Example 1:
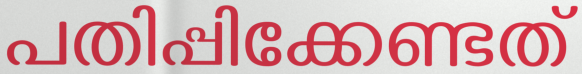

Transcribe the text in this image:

പതിപ്പിക്കേണ്ടത്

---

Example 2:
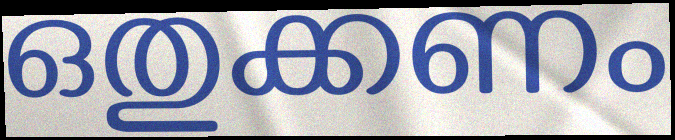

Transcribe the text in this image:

ഒതുക്കണം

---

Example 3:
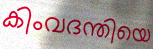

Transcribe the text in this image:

കിംവദന്തിയെ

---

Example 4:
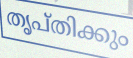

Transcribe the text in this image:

തൃപ്തിക്കും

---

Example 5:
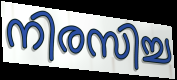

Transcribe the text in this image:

നിരസിച്ച